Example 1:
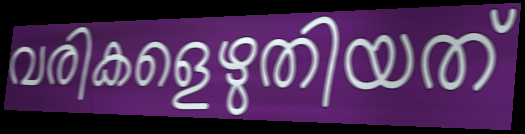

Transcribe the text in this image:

വരികളെഴുതിയത്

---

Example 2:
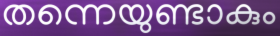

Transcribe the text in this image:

തന്നെയുണ്ടാകും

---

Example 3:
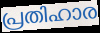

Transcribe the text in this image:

പ്രതിഹാര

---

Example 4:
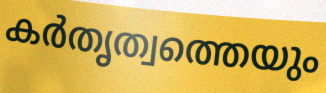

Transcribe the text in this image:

കർതൃത്വത്തെയും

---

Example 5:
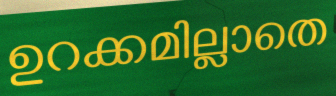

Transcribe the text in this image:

ഉറക്കമില്ലാതെ